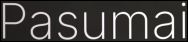
Pasumai